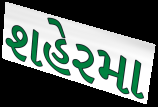
શહેરમા